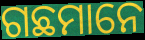
ଗଛମାନେ